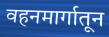
वहनमार्गातून